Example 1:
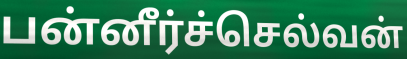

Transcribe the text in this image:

பன்னீர்ச்செல்வன்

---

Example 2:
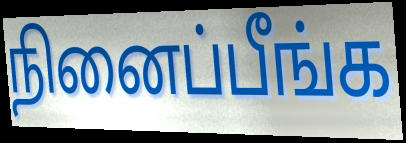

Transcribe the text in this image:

நினைப்பீங்க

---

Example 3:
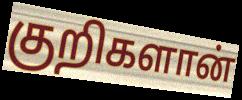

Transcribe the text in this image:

குறிகளான்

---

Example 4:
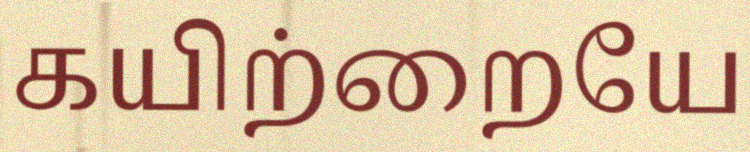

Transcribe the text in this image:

கயிற்றையே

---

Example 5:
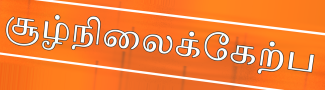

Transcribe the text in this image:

சூழ்நிலைக்கேற்ப